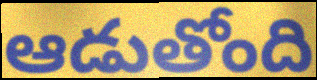
ఆడుతోంది